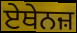
ਏਥੇਨਜ਼